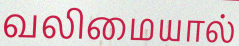
வலிமையால்